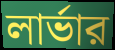
লার্ভার